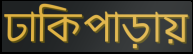
ঢাকিপাড়ায়